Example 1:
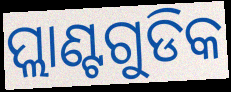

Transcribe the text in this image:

ପ୍ଲାଣ୍ଟଗୁଡିକ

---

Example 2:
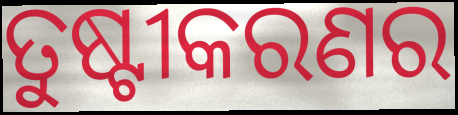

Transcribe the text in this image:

ତୁଷ୍ଟୀକରଣର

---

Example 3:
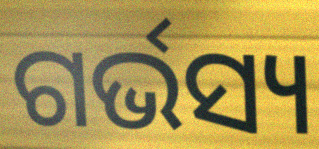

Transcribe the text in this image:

ଗର୍ଭସ୍ୟ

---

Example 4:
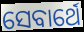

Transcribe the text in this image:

ସେବାର୍ଥେ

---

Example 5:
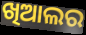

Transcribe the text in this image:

ଖିଆଲର